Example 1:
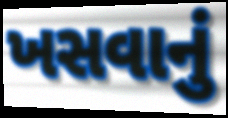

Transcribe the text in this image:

ખસવાનું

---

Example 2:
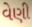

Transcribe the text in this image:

વેણી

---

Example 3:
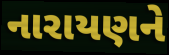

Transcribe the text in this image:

નારાયણને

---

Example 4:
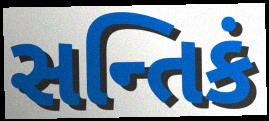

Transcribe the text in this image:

સન્તિકં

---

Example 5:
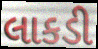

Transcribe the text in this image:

લાકડી